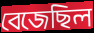
বেজেছিল